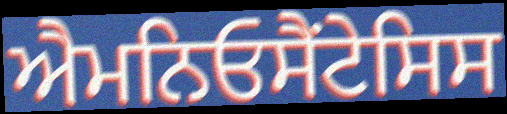
ਐਮਨਿਓਸੈਂਟੇਸਿਸ